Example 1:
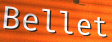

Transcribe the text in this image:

Bellet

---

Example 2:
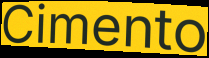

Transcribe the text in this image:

Cimento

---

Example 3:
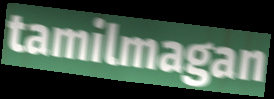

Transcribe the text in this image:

tamilmagan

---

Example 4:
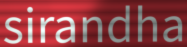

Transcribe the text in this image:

sirandha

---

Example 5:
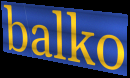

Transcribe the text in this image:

balko